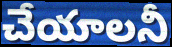
చేయాలనీ